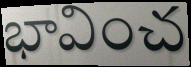
భావించ